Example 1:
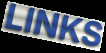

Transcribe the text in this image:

LINKS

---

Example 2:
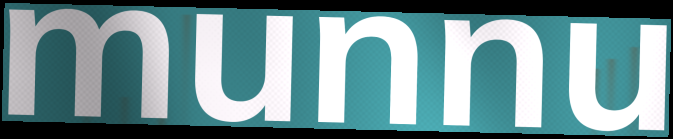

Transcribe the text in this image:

munnu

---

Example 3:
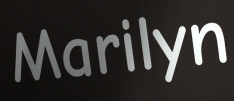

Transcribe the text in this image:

Marilyn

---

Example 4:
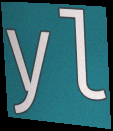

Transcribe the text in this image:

yl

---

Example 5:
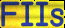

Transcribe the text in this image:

FIIs